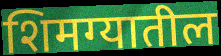
शिमग्यातील